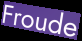
Froude